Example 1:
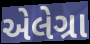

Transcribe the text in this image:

એલેગ્રા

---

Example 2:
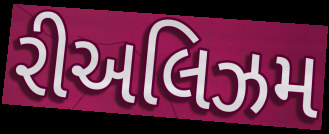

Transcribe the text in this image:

રીઅલિઝમ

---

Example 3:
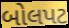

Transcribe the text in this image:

બોલપટ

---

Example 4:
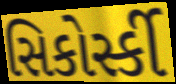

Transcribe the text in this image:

સિકોર્સ્કી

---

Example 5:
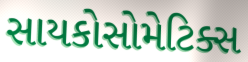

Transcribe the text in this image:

સાયકોસોમેટિક્સ